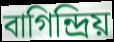
বাগিন্দ্ৰিয়